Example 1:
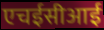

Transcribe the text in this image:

एचईसीआई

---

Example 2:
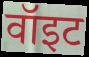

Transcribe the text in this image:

वॉइट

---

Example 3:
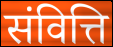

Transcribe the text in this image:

संवित्ति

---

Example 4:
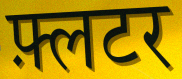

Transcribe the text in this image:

फ़्लटर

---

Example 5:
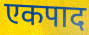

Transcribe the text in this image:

एकपाद